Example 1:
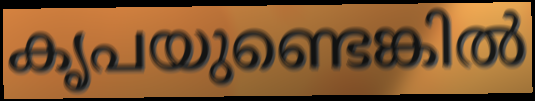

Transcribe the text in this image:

കൃപയുണ്ടെങ്കിൽ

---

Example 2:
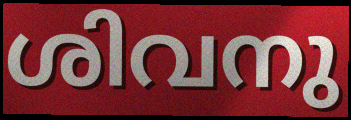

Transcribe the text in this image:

ശിവനു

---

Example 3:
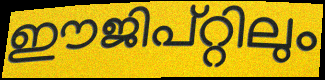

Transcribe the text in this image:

ഈജിപ്റ്റിലും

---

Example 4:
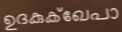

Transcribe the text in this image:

ഉദകുക്ഖേപാ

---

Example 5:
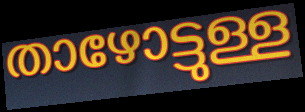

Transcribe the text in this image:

താഴോട്ടുള്ള